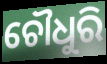
ଚୌଧୁରି